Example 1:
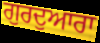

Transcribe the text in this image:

ਗੁਰਦੁਆਰਾ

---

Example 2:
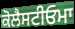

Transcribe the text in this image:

ਕੋਲੈਸਟੀਓਮਾ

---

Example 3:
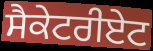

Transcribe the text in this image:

ਸੈਕੇਟਰੀਏਟ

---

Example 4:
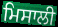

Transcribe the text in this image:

ਮਿਸਾਲੀ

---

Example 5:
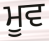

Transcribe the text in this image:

ਮੂਵ